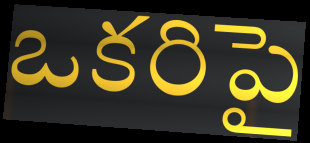
ఒకరిపై